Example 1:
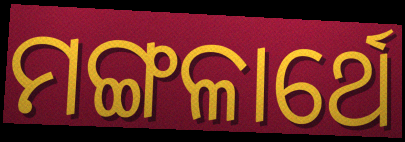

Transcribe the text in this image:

ମଙ୍ଗଳାର୍ଥେ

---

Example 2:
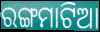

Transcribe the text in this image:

ରଙ୍ଗମାଟିଆ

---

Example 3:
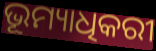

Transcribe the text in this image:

ଭୂମ୍ୟାଧିକରୀ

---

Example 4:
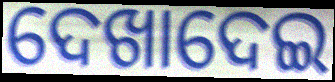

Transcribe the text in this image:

ଦେଖାଦେଇ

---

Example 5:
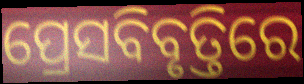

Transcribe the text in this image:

ପ୍ରେସବିବୃତ୍ତିରେ